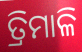
ତ୍ରିମାଳି